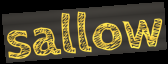
sallow